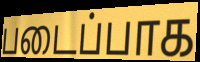
படைப்பாக